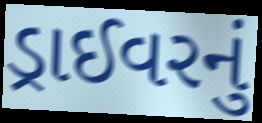
ડ્રાઈવરનું